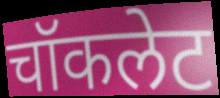
चॉकलेट